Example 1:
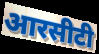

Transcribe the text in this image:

आरसीटी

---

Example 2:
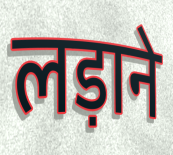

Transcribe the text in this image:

लड़ाने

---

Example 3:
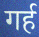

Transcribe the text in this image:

गर्ह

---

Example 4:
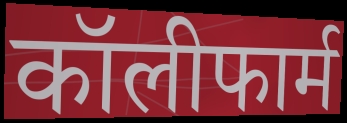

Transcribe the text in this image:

कॉलीफार्म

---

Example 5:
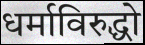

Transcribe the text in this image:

धर्माविरुद्धो